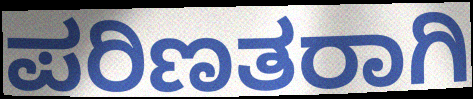
ಪರಿಣತರಾಗಿ